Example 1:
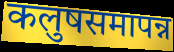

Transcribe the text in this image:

कलुषसमापन्न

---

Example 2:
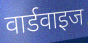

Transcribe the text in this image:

वार्डवाइज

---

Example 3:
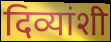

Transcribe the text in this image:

दिव्यांशी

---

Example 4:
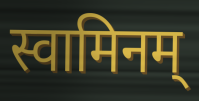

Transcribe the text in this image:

स्वामिनम्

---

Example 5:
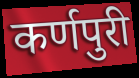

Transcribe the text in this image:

कर्णपुरी